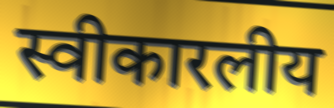
स्वीकारलीय